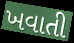
ખવાતી